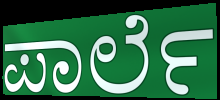
ಪಾರ್ಲೆ